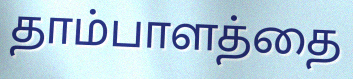
தாம்பாளத்தை